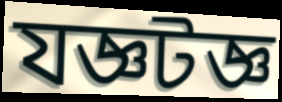
যজ্ঞটজ্ঞ